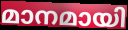
മാനമായി